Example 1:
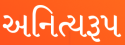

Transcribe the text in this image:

અનિત્યરૂપ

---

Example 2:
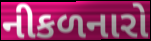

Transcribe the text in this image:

નીકળનારો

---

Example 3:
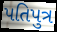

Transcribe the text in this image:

પતિપુત્ર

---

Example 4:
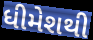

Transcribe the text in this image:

ધીમેશથી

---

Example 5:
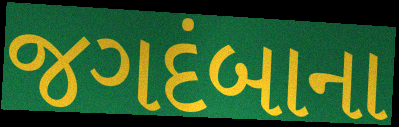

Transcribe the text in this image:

જગદંબાના